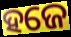
ହଜେ